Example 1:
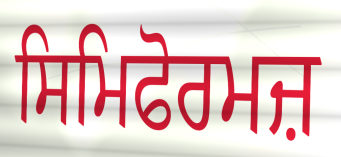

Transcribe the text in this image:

ਸਿਮਿਫੋਰਮਜ਼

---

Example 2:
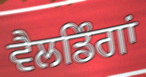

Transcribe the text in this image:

ਵੈਲਡਿੰਗਾਂ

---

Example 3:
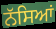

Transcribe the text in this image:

ਨੱਸਿਆਂ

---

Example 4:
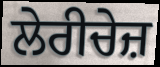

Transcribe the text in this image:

ਲੇਰੀਚੇਜ਼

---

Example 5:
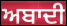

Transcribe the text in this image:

ਅਬਾਦੀ